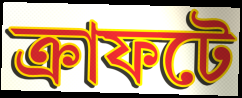
ক্রাফটে